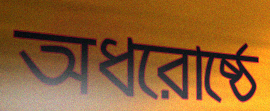
অধরোষ্ঠে